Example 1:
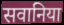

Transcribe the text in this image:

सवानिया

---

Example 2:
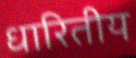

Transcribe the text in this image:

धारितीय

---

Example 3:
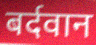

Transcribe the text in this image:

बर्दवान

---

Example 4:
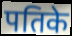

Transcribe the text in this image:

पतिके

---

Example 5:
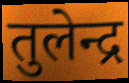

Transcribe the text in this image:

तुलेन्द्र